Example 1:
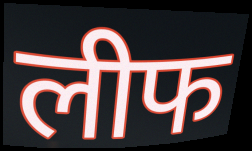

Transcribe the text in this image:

लीफ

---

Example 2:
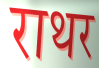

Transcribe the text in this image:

राथर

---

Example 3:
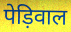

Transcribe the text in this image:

पेड़िवाल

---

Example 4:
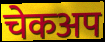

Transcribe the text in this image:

चेकअप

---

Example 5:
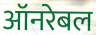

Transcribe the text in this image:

ऑनरेबल